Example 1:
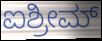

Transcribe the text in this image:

ಐಶ್ರೀಮ್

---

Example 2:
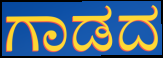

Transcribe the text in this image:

ಗಾಡದ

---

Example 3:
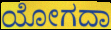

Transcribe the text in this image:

ಯೋಗದಾ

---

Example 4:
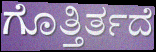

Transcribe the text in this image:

ಗೊತ್ತಿರ್ತದೆ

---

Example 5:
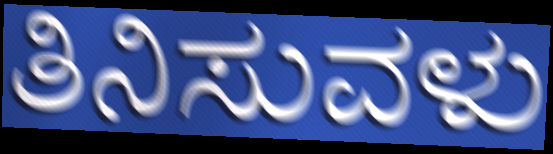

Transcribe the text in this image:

ತಿನಿಸುವಳು